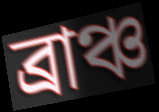
ব্রাঞ্চ